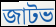
জাটভ